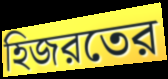
হিজরতের